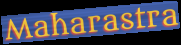
Maharastra